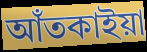
আঁতকাইয়া